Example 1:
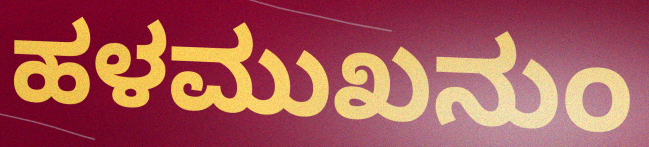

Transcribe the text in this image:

ಹಳಮುಖನುಂ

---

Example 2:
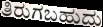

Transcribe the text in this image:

ತಿರುಗಬಹುದು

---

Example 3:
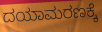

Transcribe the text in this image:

ದಯಾಮರಣಕ್ಕೆ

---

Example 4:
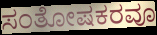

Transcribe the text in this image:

ಸಂತೋಷಕರವೂ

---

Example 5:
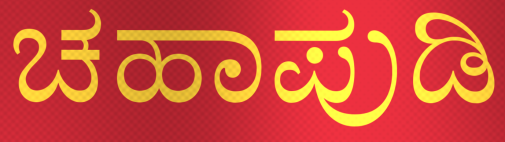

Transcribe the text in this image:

ಚಹಾಪುಡಿ